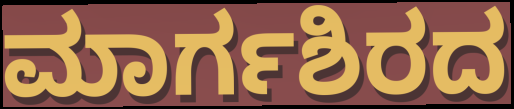
ಮಾರ್ಗಶಿರದ